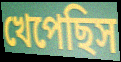
খেপেছিস